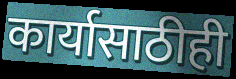
कार्यासाठीही